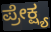
ಪ್ರೇಕ್ಷ್ಯ